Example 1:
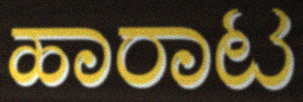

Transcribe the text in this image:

ಹಾರಾಟ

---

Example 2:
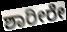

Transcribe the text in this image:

ಶಾರೀರೇ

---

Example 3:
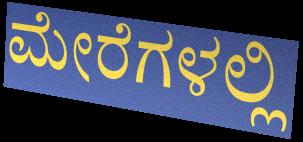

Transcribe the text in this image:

ಮೇರೆಗಳಲ್ಲಿ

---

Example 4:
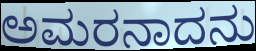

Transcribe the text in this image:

ಅಮರನಾದನು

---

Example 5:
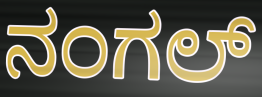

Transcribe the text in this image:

ನಂಗಲ್